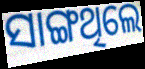
ସାଙ୍ଗଥିଲେ